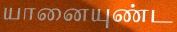
யானையுண்ட